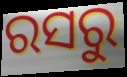
ରସରୁ